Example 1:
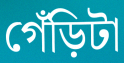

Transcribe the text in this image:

গেঁড়িটা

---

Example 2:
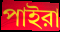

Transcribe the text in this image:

পাইরা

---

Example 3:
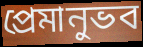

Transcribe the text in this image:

প্রেমানুভব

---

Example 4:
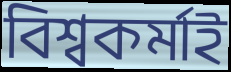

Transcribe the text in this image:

বিশ্বকর্মাই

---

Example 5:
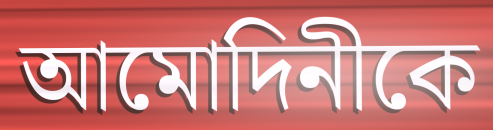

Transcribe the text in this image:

আমোদিনীকে